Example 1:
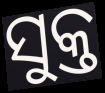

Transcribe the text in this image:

ସୁକ୍ତ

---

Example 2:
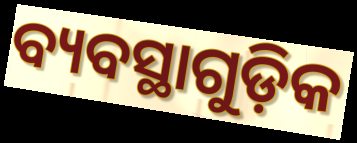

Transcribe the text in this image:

ବ୍ୟବସ୍ଥାଗୁଡ଼ିକ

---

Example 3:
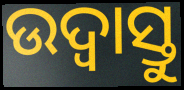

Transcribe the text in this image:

ଉଦ୍ବାସ୍ତୁ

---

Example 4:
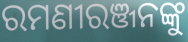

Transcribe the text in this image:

ରମଣୀରଞ୍ଜନଙ୍କୁ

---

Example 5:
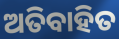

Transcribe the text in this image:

ଅତିବାହିତ